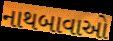
નાથબાવાઓ